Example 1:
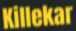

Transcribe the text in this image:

Killekar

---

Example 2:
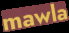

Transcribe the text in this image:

mawla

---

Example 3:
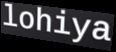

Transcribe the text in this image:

lohiya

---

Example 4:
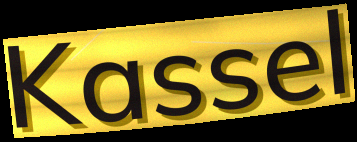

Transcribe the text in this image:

Kassel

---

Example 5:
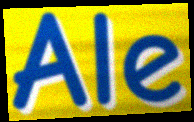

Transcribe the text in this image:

Ale